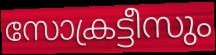
സോക്രട്ടീസും